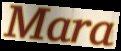
Mara